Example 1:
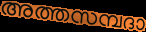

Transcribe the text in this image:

അത്തസമ്പദാ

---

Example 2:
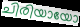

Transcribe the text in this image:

ചിരിയായോ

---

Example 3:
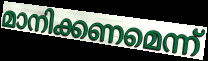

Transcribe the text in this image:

മാനിക്കണമെന്ന്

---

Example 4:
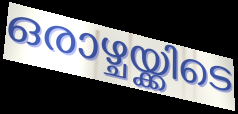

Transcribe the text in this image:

ഒരാഴ്ചയ്ക്കിടെ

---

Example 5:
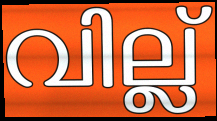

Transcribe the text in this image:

വില്ല്